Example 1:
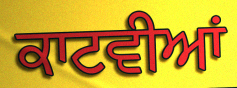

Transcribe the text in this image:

ਕਾਟਵੀਆਂ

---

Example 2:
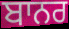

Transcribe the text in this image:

ਬਾਨਰ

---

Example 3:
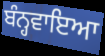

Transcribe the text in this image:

ਬੰਨ੍ਹਵਾਇਆ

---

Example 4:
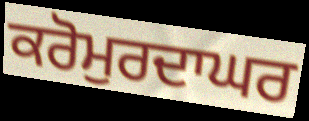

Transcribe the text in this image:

ਕਰੋਮੁਰਦਾਘਰ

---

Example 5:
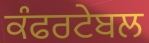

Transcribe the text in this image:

ਕੰਫਰਟੇਬਲ